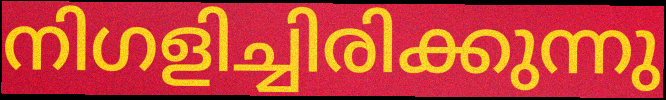
നിഗളിച്ചിരിക്കുന്നു